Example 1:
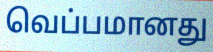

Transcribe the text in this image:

வெப்பமானது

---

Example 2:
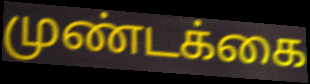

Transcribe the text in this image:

முண்டக்கை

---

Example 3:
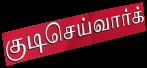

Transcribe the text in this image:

குடிசெய்வார்க்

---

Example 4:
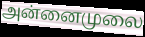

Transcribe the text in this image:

அன்னைமுலை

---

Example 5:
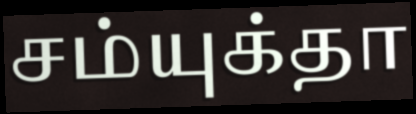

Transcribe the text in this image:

சம்யுக்தா